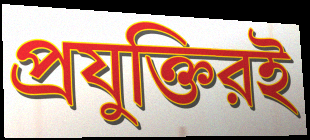
প্রযুক্তিরই